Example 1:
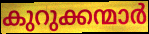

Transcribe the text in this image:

കുറുക്കന്മാർ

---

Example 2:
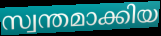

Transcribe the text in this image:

സ്വന്തമാക്കിയ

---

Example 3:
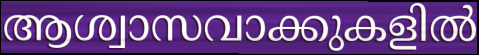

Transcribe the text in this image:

ആശ്വാസവാക്കുകളിൽ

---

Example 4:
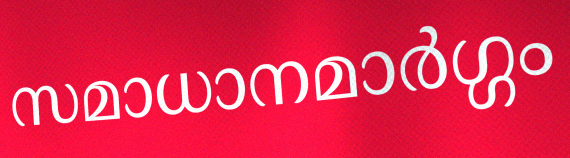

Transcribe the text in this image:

സമാധാനമാർഗ്ഗം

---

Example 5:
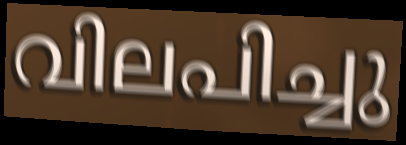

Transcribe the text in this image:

വിലപിച്ചു